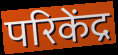
परिकेंद्र